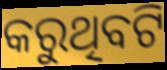
କରୁଥିବଟି